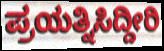
ಪ್ರಯತ್ನಿಸಿದ್ದೀರಿ